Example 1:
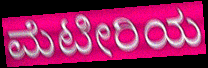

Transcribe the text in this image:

ಮೆಟೀರಿಯ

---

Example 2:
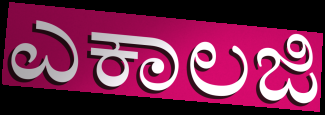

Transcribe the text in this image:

ಎಕಾಲಜಿ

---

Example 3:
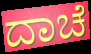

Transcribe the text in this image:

ದಾಚೆ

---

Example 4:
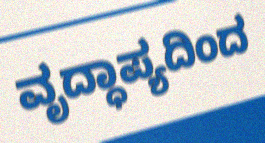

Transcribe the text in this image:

ವೃದ್ಧಾಪ್ಯದಿಂದ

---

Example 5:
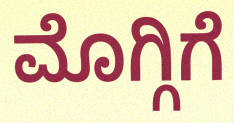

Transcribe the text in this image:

ಮೊಗ್ಗಿಗೆ